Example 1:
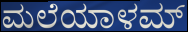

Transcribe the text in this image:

ಮಲೆಯಾಳಮ್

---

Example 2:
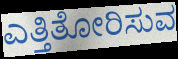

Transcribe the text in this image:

ಎತ್ತಿತೋರಿಸುವ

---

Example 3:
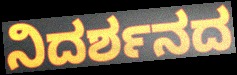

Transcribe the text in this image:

ನಿದರ್ಶನದ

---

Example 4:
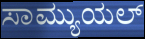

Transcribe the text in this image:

ಸಾಮ್ಯುಯಲ್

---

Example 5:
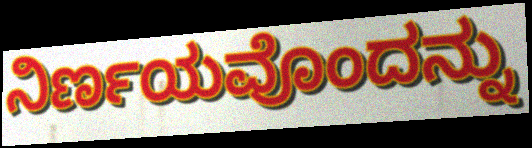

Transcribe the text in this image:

ನಿರ್ಣಯವೊಂದನ್ನು